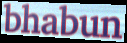
bhabun